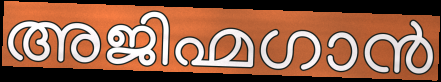
അജിഹ്മഗാൻ